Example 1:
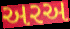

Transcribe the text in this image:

અરઅ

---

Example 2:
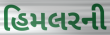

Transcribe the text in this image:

હિમલરની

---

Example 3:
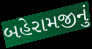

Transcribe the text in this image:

બહેરામજીનું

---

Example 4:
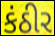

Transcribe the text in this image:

કંઠીર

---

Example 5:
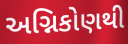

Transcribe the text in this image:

અગ્નિકોણથી